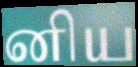
னிய